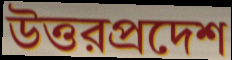
উত্তরপ্রদেশ